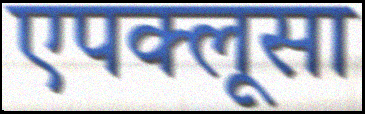
एपक्लूसा